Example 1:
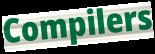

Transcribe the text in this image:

Compilers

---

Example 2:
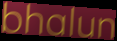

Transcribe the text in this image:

bhalun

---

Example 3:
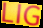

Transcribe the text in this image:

LIG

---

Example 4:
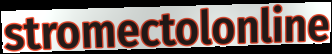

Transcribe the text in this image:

stromectolonline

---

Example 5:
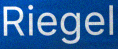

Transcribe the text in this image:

Riegel